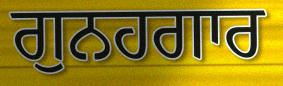
ਗੁਨਹਗਾਰ